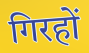
गिरहों